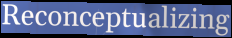
Reconceptualizing